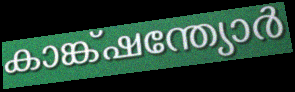
കാങ്ക്ഷന്ത്യോർ